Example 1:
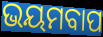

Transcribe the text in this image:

ଭୟମବାପ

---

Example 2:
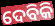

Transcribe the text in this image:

ଦେବିକି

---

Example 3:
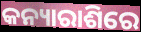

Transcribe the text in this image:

କନ୍ୟାରାଶିରେ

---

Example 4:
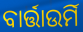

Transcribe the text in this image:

ବାର୍ତ୍ତାଉର୍ମି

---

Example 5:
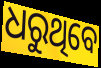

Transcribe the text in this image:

ଧରୁଥିବେ